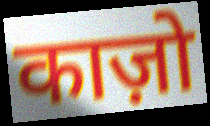
काज़ो